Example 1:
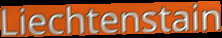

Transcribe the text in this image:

Liechtenstain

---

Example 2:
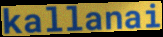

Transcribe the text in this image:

kallanai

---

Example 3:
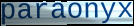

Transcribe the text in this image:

paraonyx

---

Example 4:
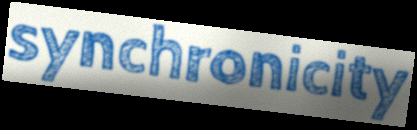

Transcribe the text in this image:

synchronicity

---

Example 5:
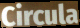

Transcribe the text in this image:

Circula